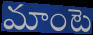
మాంటె